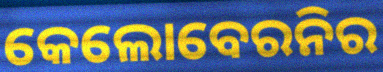
କେଲୋବେରନିର